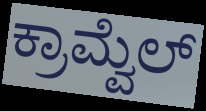
ಕ್ರಾಮ್ವೆಲ್